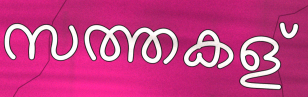
സത്തകള്